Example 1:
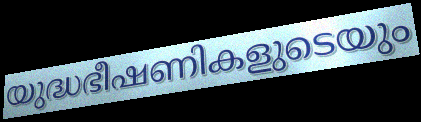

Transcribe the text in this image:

യുദ്ധഭീഷണികളുടെയും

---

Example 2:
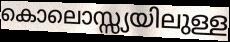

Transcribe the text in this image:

കൊലൊസ്സ്യയിലുള്ള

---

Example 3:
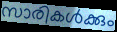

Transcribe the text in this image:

സാരികൾക്കും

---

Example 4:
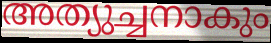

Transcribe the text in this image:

അത്യുച്ചനാകും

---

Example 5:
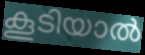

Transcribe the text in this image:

കൂടിയാൽ